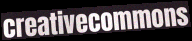
creativecommons